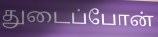
துடைப்போன்